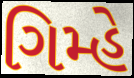
ગિમ્હે